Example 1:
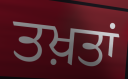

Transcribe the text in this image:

ਤਖ਼ਤਾਂ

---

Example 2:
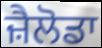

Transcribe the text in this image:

ਜ਼ੈਲੋਡਾ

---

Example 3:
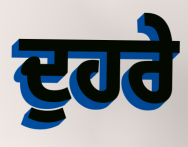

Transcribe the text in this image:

ਦੁਹਰੇ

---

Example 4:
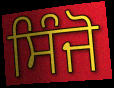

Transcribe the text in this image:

ਸਿੰਜੋ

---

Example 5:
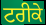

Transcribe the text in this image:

ਟਰੀਕੇ